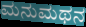
ಮನುಮಥನ